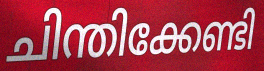
ചിന്തിക്കേണ്ടി